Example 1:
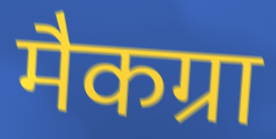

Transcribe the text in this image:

मैकग्रा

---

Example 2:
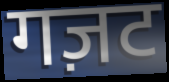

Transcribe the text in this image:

गज़ट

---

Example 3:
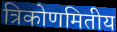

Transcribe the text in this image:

त्रिकोणमितीय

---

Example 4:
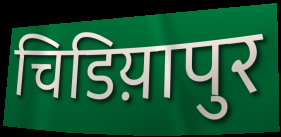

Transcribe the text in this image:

चिडिय़ापुर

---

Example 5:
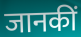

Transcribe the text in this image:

जानकीं